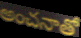
అంచనాతో